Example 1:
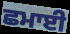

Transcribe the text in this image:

ਛਮਾਈ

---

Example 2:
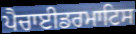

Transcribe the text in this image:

ਪੈਚਾਈਡਰਮਾਟਿਸ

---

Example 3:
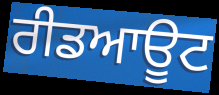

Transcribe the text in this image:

ਰੀਡਆਊਟ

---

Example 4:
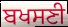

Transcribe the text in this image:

ਬਖਸਣੀ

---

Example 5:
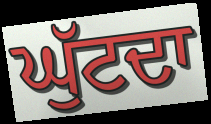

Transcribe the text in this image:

ਘੁੱਟਦਾ